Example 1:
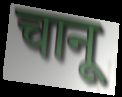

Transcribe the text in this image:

चानू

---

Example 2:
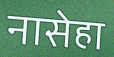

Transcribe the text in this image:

नासेहा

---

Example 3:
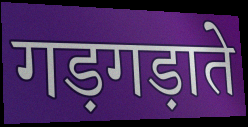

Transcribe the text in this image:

गड़गड़ाते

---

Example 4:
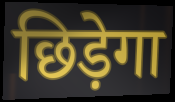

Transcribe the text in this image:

छिड़ेगा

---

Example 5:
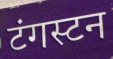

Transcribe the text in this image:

टंगस्टन